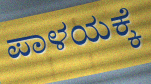
ಪಾಳಯಕ್ಕೆ